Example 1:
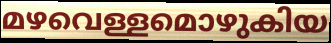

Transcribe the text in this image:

മഴവെള്ളമൊഴുകിയ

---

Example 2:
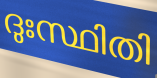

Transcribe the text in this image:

ദുഃസ്ഥിതി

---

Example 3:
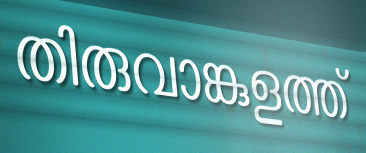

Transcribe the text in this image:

തിരുവാങ്കുളത്ത്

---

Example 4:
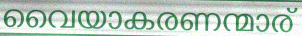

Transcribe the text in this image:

വൈയാകരണന്മാര്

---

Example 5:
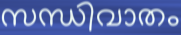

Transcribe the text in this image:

സന്ധിവാതം